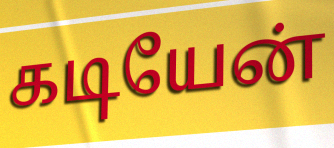
கடியேன்